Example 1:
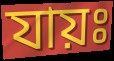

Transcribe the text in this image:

যায়ঃ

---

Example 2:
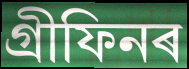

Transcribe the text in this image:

গ্ৰীফিনৰ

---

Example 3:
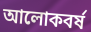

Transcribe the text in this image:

আলোকবৰ্ষ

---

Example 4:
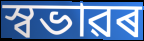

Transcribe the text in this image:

স্বভাৱৰ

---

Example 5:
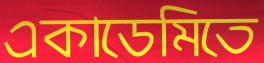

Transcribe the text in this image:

একাডেমিতে